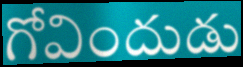
గోవిందుడు